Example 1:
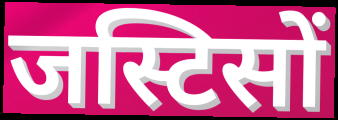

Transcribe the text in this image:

जस्टिसों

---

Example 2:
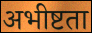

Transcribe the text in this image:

अभीष्टता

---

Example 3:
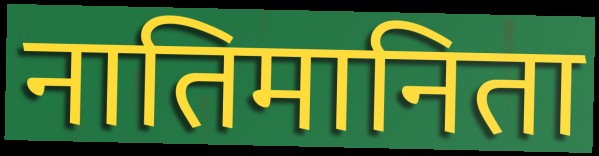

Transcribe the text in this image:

नातिमानिता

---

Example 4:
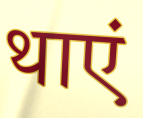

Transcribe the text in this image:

थाएं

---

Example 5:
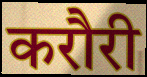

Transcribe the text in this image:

करौरी